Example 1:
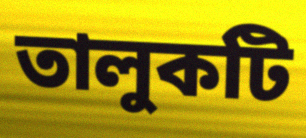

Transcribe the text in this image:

তালুকটি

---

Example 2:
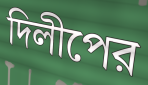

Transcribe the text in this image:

দিলীপের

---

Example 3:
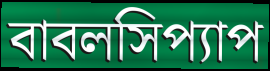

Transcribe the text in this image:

বাবলসিপ্যাপ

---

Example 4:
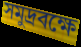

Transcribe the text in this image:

সমুদ্রবক্ষে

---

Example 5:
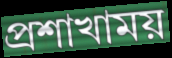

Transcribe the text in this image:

প্রশাখাময়